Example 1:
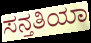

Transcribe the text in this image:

ಸನ್ತತಿಯಾ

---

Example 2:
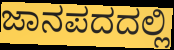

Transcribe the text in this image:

ಜಾನಪದದಲ್ಲಿ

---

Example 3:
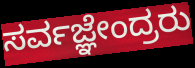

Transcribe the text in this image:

ಸರ್ವಜ್ಞೇಂದ್ರರು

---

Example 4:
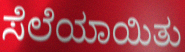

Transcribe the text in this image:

ಸೆಲೆಯಾಯಿತು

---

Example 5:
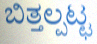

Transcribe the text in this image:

ಬಿತ್ತಲ್ಪಟ್ಟ